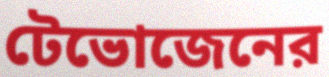
টেভোজেনের